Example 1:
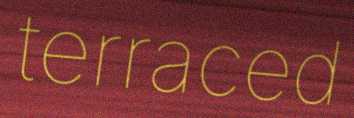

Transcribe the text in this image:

terraced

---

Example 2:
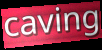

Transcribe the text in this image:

caving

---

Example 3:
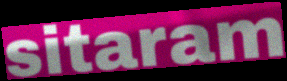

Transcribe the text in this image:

sitaram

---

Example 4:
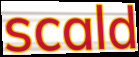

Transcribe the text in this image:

scald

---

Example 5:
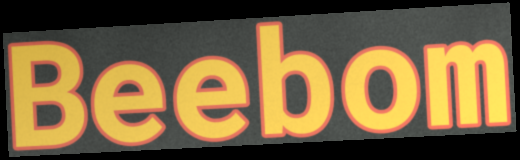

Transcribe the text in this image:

Beebom